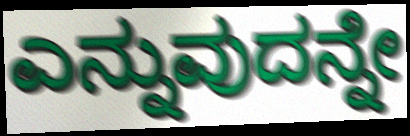
ಎನ್ನುವುದನ್ನೇ